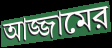
আজ্জামের